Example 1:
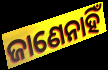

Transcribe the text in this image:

ଜାଣେନାହିଁ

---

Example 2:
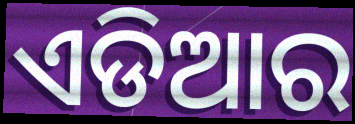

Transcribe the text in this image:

ଏଡିଆର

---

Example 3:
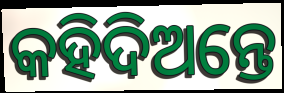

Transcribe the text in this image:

କହିଦିଅନ୍ତେ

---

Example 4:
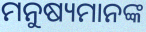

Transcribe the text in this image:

ମନୁଷ୍ୟମାନଙ୍କ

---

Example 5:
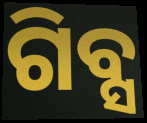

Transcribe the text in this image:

ଗିବ୍ସ